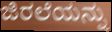
ಜಿರಲೆಯನ್ನು